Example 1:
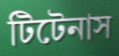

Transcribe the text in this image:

টিটেনাস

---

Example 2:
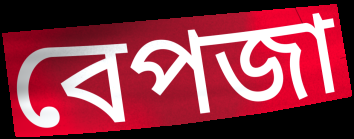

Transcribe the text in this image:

বেপজা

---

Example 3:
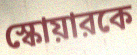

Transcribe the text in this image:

স্কোয়ারকে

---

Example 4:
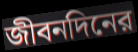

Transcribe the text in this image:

জীবনদিনের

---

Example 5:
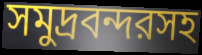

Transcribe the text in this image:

সমুদ্রবন্দরসহ